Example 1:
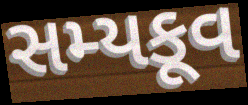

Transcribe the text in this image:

સમ્યકૂવ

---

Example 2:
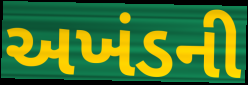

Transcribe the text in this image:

અખંડની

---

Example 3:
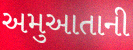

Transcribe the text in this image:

અમુઆતાની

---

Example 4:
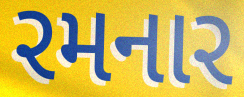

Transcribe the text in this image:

રમનાર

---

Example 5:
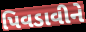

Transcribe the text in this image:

પિવડાવીને